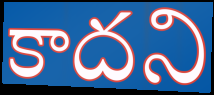
కాదని